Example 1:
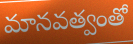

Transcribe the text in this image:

మానవత్వంతో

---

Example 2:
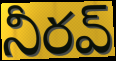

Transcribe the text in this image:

నీరవ్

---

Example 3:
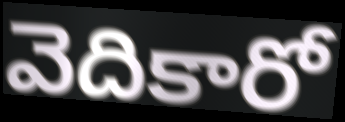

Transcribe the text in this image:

వెదికారో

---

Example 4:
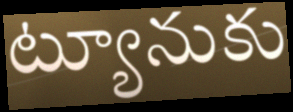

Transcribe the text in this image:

ట్యూనుకు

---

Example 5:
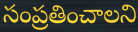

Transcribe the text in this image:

సంప్రతించాలని